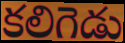
కలిగెడు